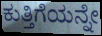
ಕುತ್ತಿಗೆಯನ್ನೇ